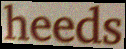
heeds